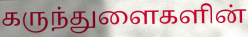
கருந்துளைகளின்